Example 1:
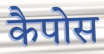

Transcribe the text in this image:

कैपोस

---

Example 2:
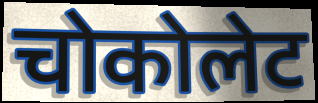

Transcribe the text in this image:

चोकोलेट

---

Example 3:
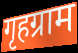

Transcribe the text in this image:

गृहग्राम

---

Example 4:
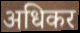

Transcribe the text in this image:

अधिकर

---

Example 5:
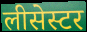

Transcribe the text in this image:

लीसेस्टर